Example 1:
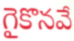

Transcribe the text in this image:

గైకొనవే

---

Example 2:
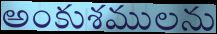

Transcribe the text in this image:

అంకుశములను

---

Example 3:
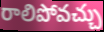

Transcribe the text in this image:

రాలిపోవచ్చు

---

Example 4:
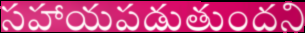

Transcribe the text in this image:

సహాయపడుతుందని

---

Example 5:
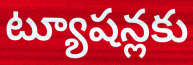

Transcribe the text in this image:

ట్యూషన్లకు